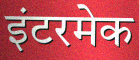
इंटरमेक